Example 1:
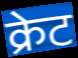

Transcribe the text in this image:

क्रेट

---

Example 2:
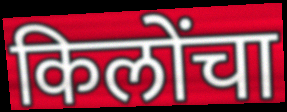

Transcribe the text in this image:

किलोंचा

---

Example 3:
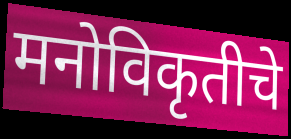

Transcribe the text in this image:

मनोविकृतीचे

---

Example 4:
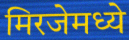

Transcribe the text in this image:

मिरजेमध्ये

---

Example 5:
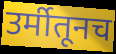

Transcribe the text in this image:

उर्मीतूनच